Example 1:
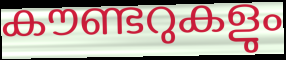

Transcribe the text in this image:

കൗണ്ടറുകളും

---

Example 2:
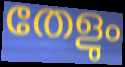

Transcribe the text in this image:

തേളും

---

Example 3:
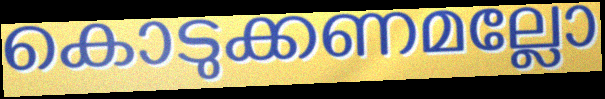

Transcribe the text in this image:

കൊടുക്കണമല്ലോ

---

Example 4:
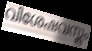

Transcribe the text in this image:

വിശേഷവസ്ത്രം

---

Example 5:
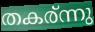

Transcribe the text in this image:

തകര്ന്നു